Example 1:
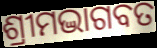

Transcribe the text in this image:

ଶ୍ରୀମଦ୍ଭାଗବତ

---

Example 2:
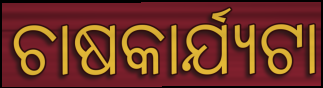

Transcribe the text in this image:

ଚାଷକାର୍ଯ୍ୟଟା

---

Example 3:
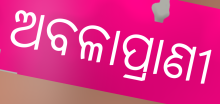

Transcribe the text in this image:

ଅବଳାପ୍ରାଣୀ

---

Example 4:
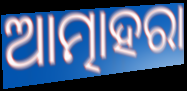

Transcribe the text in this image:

ଆତ୍ମାହରା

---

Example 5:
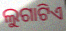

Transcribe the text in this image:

ଲୁଗାଟିଏ